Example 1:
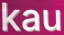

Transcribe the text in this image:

kau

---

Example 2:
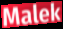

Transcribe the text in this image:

Malek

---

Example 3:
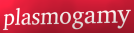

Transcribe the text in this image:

plasmogamy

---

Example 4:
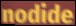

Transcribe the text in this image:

nodide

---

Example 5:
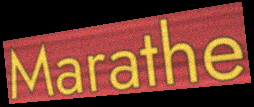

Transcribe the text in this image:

Marathe